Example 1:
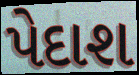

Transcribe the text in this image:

પેદાશ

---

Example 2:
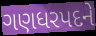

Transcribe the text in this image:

ગણધરપદને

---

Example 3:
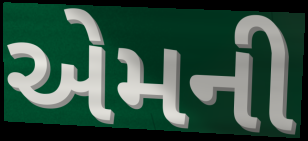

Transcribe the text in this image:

એમની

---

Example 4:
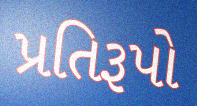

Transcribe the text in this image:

પ્રતિરૂપો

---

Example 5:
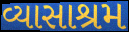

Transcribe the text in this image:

વ્યાસાશ્રમ